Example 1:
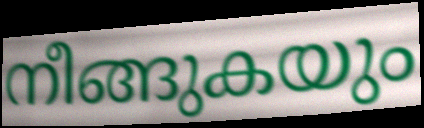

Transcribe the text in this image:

നീങ്ങുകയും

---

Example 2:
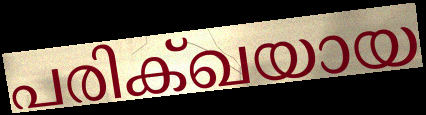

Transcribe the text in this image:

പരിക്ഖയായ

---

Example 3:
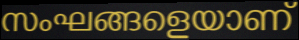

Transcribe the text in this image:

സംഘങ്ങളെയാണ്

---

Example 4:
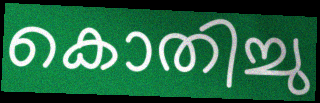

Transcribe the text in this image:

കൊതിച്ചു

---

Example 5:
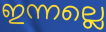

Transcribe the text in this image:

ഇന്നല്ലെ